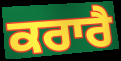
ਕਰਾਰੈ